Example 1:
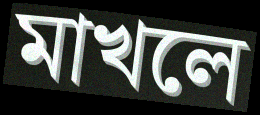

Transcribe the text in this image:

মাখলে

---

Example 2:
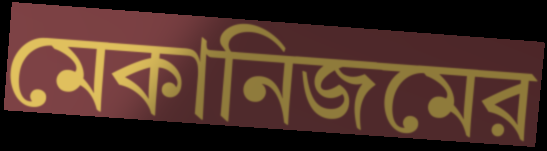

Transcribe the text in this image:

মেকানিজমের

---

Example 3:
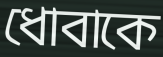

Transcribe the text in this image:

ধোবাকে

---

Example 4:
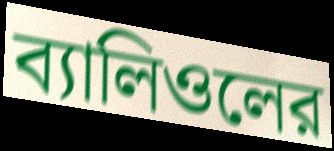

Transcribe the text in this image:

ব্যালিওলের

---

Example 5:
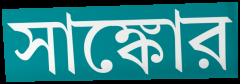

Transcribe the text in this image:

সাঙ্কোর